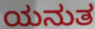
ಯನುತ